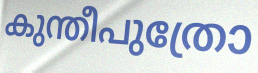
കുന്തീപുത്രോ